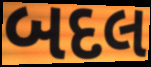
બદલ